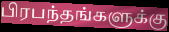
பிரபந்தங்களுக்கு